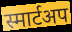
स्मार्टअप